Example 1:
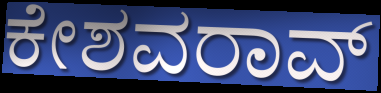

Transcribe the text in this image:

ಕೇಶವರಾವ್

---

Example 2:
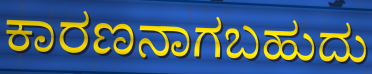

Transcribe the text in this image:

ಕಾರಣನಾಗಬಹುದು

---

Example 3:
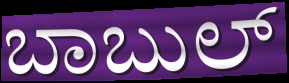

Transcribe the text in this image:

ಬಾಬುಲ್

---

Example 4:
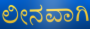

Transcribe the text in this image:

ಲೀನವಾಗಿ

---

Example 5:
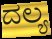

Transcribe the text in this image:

ದಲ್ಯ